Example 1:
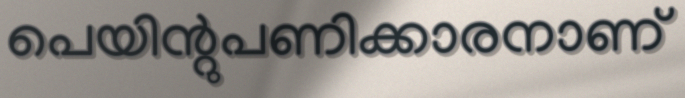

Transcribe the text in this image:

പെയിന്റുപണിക്കാരനാണ്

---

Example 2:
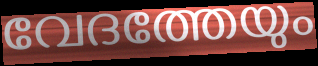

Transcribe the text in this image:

വേദത്തേയും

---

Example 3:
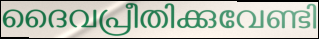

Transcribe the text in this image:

ദൈവപ്രീതിക്കുവേണ്ടി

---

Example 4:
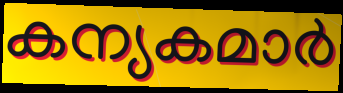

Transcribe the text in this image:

കന്യകമാർ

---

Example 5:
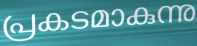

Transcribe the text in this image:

പ്രകടമാകുന്നു